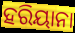
ହରିୟାନା